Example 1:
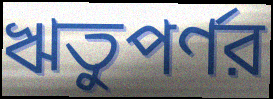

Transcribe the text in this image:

ঋতুপর্ণর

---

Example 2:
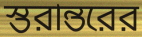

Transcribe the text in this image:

স্তরান্তরের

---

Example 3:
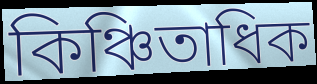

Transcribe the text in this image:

কিঞ্চিতাধিক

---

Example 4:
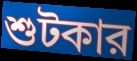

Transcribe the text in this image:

শুটকার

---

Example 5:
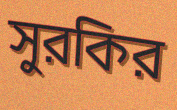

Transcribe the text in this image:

সুরকির